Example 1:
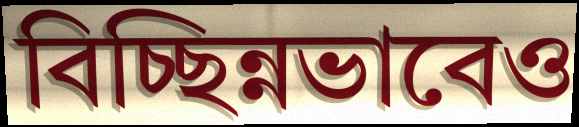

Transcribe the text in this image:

বিচ্ছিন্নভাবেও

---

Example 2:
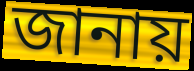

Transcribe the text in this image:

জানায়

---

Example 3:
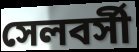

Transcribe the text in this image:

সেলবর্সী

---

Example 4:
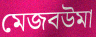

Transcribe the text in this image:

মেজবউমা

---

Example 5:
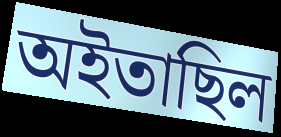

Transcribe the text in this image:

অইতাছিল